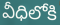
వీధిలోకి